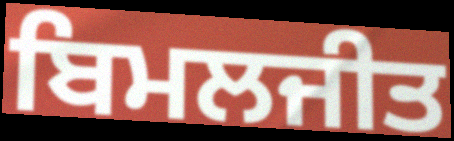
ਬਿਮਲਜੀਤ